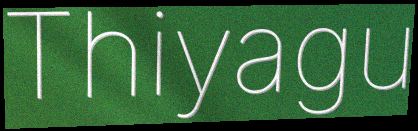
Thiyagu